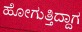
ಹೋಗುತ್ತಿದ್ದಾಗ